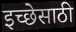
इच्छेसाठी